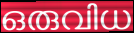
ഒരുവിധ